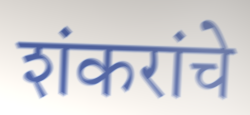
शंकरांचे